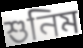
শুনিম